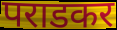
पराडकर